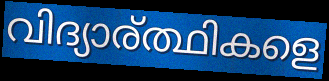
വിദ്യാര്ത്ഥികളെ